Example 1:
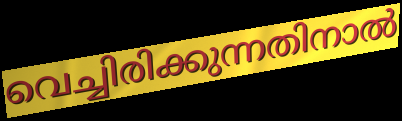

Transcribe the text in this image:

വെച്ചിരിക്കുന്നതിനാൽ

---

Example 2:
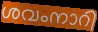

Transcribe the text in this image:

ശവംനാറി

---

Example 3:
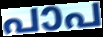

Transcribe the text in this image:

പാപ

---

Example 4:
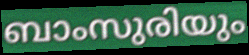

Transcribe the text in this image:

ബാംസുരിയും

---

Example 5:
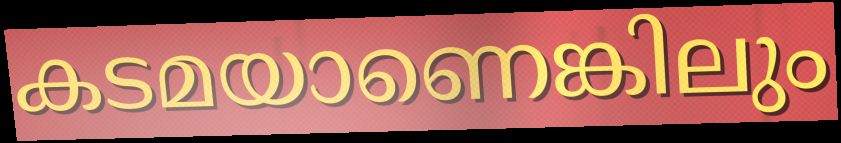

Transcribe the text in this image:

കടമയാണെങ്കിലും